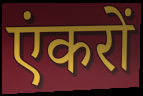
एंकरों